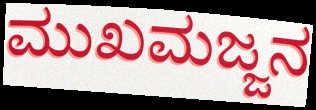
ಮುಖಮಜ್ಜನ